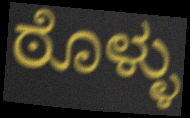
ಠೊಳ್ಳು